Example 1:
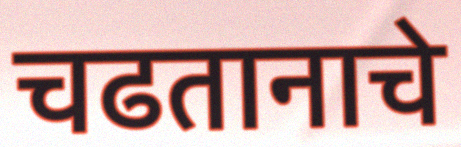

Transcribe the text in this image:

चढतानाचे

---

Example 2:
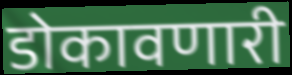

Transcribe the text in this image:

डोकावणारी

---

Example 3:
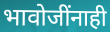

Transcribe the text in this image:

भावोजींनाही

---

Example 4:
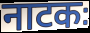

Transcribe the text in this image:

नाटकः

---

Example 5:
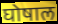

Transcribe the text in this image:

घोषाल